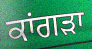
ਕਾਂਗਡ਼ਾ